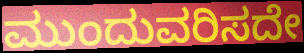
ಮುಂದುವರಿಸದೇ